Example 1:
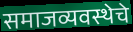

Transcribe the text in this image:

समाजव्यवस्थेचे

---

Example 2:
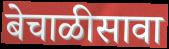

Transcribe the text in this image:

बेचाळीसावा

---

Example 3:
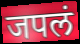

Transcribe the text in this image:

जपलं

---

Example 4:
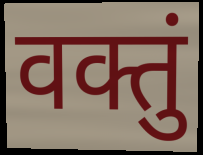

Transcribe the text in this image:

वक्तुं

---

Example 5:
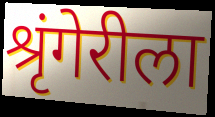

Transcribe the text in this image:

श्रृंगेरीला